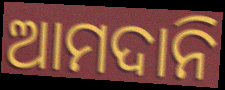
ଆମଦାନି